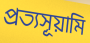
প্রত্যসূয়ামি